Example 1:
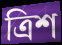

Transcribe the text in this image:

ত্ৰিশ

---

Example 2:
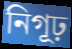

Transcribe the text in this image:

নিগূঢ়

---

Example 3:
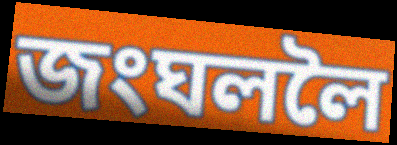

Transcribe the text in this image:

জংঘললৈ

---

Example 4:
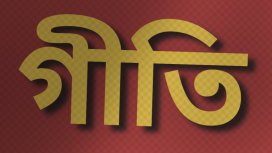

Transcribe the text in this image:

গীতি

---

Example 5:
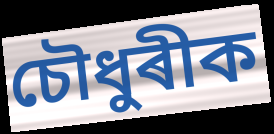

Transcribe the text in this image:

চৌধুৰীক